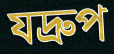
যদ্রুপ